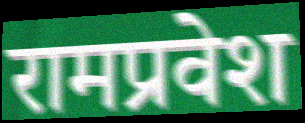
रामप्रवेश